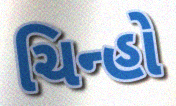
ચિન્હો